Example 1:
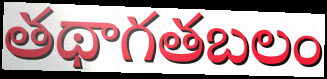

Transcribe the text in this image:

తథాగతబలం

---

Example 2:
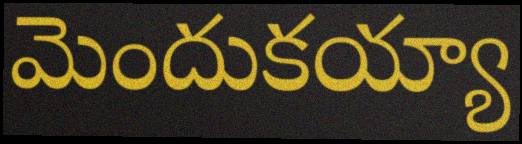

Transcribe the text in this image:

మెందుకయ్యా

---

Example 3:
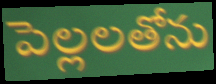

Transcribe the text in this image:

పెల్లలతోను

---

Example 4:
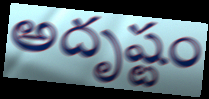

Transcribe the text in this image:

అదృష్టం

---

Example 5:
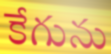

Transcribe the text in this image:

కేగును